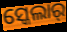
ସ୍କେଲାର୍